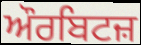
ਔਰਬਿਟਜ਼